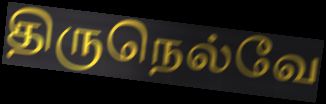
திருநெல்வே